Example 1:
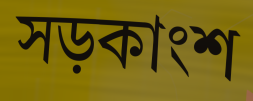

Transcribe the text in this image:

সড়কাংশ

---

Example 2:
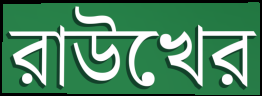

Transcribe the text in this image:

রাউখের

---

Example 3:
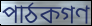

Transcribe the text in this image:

পাঠকগণ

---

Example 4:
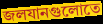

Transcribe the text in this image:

জলযানগুলোতে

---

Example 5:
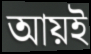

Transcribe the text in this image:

আয়ই